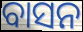
ବାସନ